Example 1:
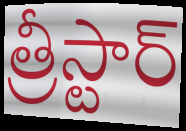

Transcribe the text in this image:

త్రీస్టార్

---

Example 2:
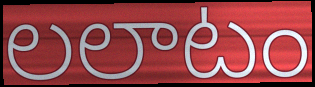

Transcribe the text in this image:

లలాటం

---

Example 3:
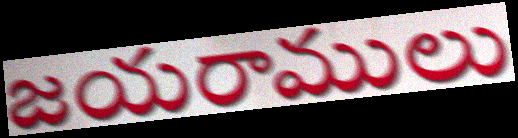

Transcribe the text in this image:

జయరాములు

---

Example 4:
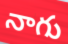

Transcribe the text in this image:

నాగు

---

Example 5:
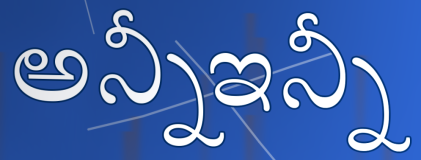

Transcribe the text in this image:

అన్నీఇన్నీ